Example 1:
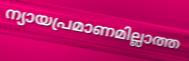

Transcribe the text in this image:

ന്യായപ്രമാണമില്ലാത്ത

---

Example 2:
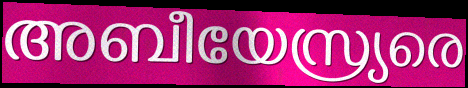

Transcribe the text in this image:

അബീയേസ്ര്യരെ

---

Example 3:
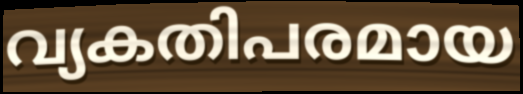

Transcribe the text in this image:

വ്യകതിപരമായ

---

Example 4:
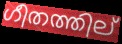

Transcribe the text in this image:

ഗീതത്തില്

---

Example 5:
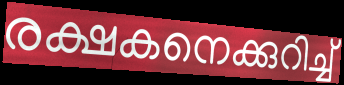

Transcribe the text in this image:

രക്ഷകനെക്കുറിച്ച്